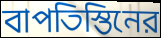
বাপতিস্তিনের